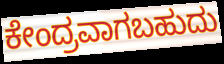
ಕೇಂದ್ರವಾಗಬಹುದು